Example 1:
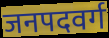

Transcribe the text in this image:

जनपदवर्ग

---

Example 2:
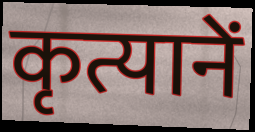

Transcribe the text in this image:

कृत्यानें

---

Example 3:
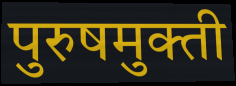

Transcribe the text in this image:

पुरुषमुक्ती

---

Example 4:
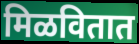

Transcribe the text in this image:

मिळवितात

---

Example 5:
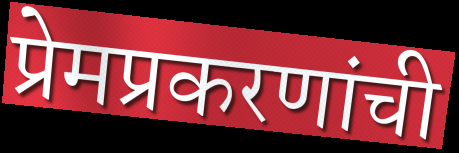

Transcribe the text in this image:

प्रेमप्रकरणांची